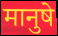
मानुषे